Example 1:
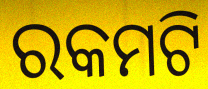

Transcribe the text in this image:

ରକମଟି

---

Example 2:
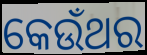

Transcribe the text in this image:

କେଉଁଥର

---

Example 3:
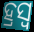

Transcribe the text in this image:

ହ୍ରସ୍ୱ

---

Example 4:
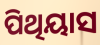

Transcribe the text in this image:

ପିଥିୟାସ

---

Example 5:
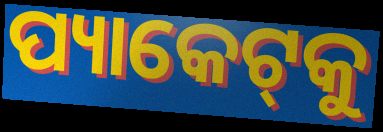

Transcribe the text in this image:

ପ୍ୟାକେଟ୍‌କୁ